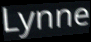
Lynne